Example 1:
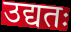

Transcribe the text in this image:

उद्यतः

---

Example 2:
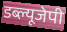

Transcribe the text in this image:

डब्ल्यूजेपी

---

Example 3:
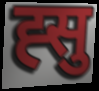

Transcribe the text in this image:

ह्सु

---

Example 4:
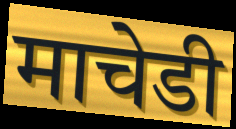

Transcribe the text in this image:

माचेडी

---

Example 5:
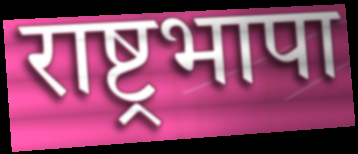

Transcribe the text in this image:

राष्ट्रभापा